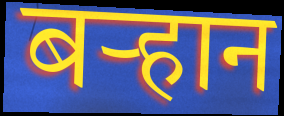
बऱ्हान